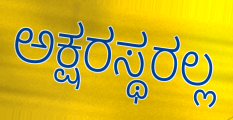
ಅಕ್ಷರಸ್ಥರಲ್ಲ